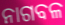
ନାଗବଳ